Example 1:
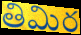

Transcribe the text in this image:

తిమిర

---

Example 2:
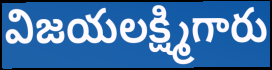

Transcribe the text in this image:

విజయలక్ష్మిగారు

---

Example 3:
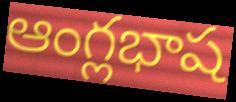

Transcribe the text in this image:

ఆంగ్లభాష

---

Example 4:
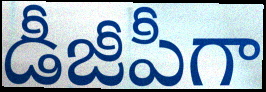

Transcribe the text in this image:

డీజీపీగా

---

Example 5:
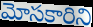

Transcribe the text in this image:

మోసకారిని